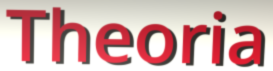
Theoria